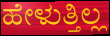
ಹೇಳುತ್ತಿಲ್ಲ